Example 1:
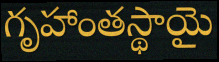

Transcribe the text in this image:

గృహాంతస్థాయై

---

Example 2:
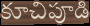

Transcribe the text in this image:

కూచిపూడి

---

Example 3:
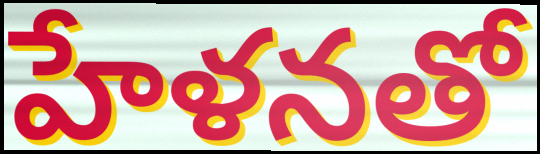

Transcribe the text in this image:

హేళనతో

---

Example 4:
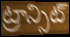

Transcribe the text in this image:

ట్రాన్సిట్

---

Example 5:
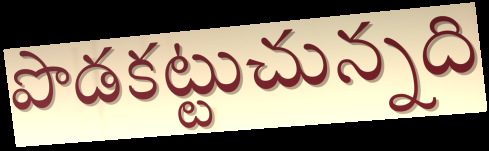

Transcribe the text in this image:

పొడకట్టుచున్నది